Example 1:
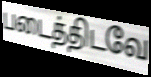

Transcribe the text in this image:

படைத்திடவே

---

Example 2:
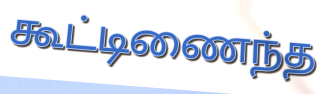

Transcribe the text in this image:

கூட்டிணைந்த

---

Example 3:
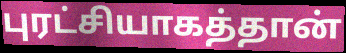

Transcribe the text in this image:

புரட்சியாகத்தான்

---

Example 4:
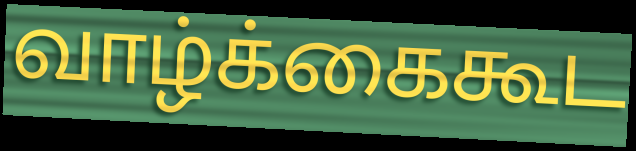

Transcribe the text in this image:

வாழ்க்கைகூட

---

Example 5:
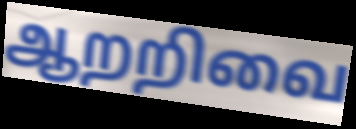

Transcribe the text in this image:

ஆறறிவை